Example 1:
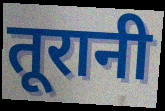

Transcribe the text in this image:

तूरानी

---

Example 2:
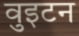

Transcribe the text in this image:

वुइटन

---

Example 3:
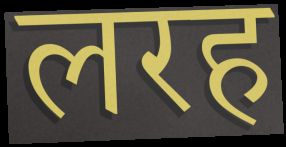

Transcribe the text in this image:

लरह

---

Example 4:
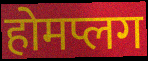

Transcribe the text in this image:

होमप्लग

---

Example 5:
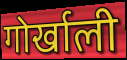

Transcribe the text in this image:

गोर्खाली